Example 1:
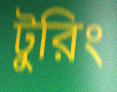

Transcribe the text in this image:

টুরিং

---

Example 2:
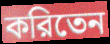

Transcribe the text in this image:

করিতেন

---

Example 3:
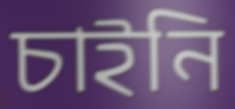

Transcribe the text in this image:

চাইনি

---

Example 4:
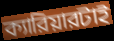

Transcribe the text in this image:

ক্যারিয়ারটাই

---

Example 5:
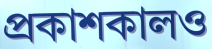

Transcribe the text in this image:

প্রকাশকালও